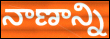
నాణాన్ని